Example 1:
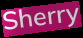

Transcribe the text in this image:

Sherry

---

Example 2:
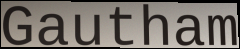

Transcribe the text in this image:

Gautham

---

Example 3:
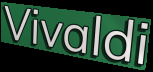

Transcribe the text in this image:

Vivaldi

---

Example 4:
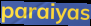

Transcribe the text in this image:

paraiyas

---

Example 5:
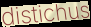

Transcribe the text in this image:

distichus